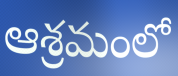
ఆశ్రమంలో